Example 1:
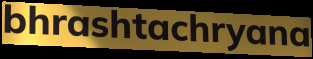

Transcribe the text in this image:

bhrashtachryana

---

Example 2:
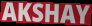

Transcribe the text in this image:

AKSHAY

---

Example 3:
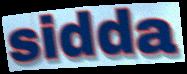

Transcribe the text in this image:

sidda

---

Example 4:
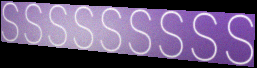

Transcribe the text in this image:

sssssssss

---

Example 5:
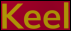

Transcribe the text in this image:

Keel